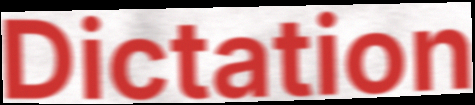
Dictation